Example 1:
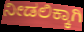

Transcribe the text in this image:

ನೀಡಲಿಕ್ಕಾಗಿ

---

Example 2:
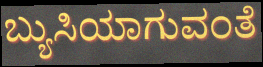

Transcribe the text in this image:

ಬ್ಯುಸಿಯಾಗುವಂತೆ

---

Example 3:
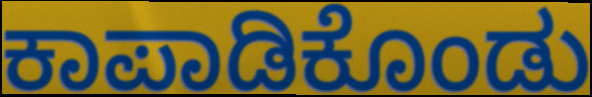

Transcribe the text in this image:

ಕಾಪಾಡಿಕೊಂಡು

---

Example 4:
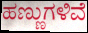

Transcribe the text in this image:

ಹಣ್ಣುಗಳಿವೆ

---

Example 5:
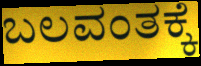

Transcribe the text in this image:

ಬಲವಂತಕ್ಕೆ